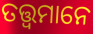
ତତ୍ତ୍ବମାନେ